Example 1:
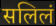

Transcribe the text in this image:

सलिलं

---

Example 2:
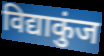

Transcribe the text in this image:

विद्याकुंज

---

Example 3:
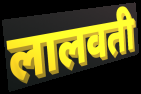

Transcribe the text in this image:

लालवती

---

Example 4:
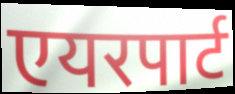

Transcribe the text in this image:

एयरपार्ट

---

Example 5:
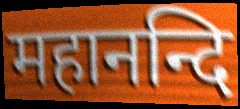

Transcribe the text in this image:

महानन्दि